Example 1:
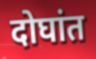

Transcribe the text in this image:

दोघांत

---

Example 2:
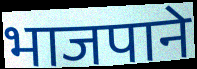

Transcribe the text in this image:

भाजपाने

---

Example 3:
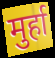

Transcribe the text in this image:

मुर्हा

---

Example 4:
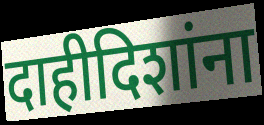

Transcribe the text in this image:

दाहीदिशांना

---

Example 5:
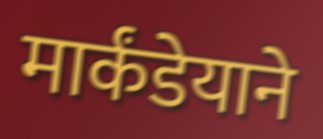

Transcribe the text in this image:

मार्कंडेयाने